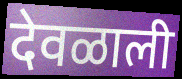
देवळाली